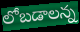
లోబడాలన్న